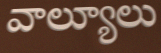
వాల్యూలు